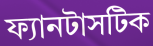
ফ্যানটাসটিক